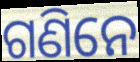
ଗଣିନେ